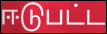
ஈடுபட்ட